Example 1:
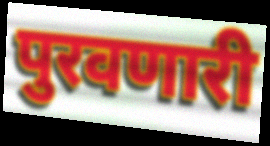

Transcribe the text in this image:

पुरवणारी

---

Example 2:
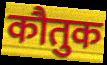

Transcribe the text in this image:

कौतुक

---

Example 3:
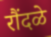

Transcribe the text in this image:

रौंदळे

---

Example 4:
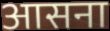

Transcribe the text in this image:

आसना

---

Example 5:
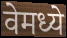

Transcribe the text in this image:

वेमध्ये